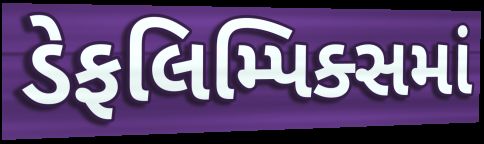
ડેફલિમ્પિક્સમાં